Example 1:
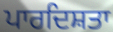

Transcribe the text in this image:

ਪਾਰਦਿਸ਼ਤਾ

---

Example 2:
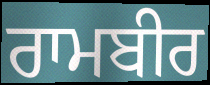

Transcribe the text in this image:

ਰਾਮਬੀਰ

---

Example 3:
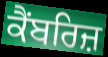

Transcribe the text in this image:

ਕੈਂਬਰਿਜ਼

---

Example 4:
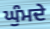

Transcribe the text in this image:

ਘੁੰਮਦੇ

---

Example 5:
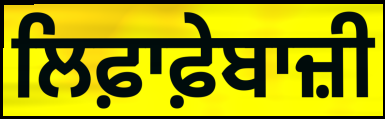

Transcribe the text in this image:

ਲਿਫ਼ਾਫ਼ੇਬਾਜ਼ੀ